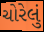
ચોરેલું